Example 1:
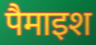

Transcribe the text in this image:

पैमाइश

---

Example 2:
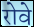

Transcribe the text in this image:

रोवे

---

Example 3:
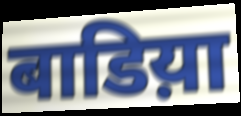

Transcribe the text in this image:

बाडिय़ा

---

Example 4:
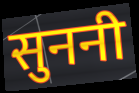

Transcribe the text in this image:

सुननी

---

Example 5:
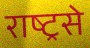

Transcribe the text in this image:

राष्ट्रसे